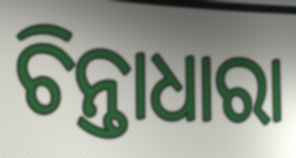
ଚିନ୍ତାଧାରା